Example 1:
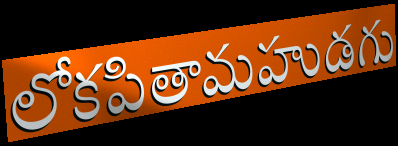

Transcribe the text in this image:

లోకపితామహుడగు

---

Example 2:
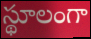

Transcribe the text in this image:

స్థూలంగా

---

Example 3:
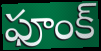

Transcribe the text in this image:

ఫూంక్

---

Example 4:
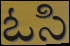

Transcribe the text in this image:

ఓసి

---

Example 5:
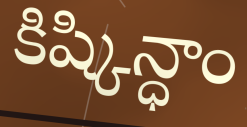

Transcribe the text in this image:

కిష్కిన్ధాం